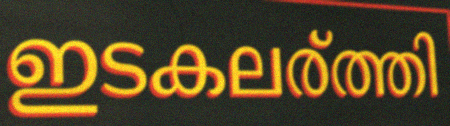
ഇടകലര്ത്തി